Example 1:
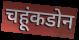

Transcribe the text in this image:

चहूंकडोन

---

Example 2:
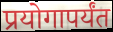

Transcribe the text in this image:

प्रयोगापर्यंत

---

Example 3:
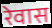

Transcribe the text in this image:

रेवास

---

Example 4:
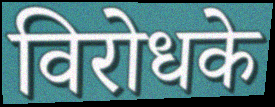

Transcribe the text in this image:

विरोधके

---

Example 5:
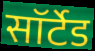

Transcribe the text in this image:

सॉर्टेड